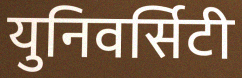
युनिवर्सिटी